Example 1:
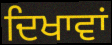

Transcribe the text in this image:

ਦਿਖਾਵਾਂ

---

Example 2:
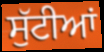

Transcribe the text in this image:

ਸੁੱਟੀਆਂ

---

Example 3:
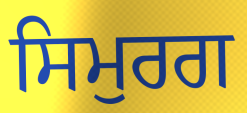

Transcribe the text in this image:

ਸਿਮੁਰਗ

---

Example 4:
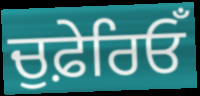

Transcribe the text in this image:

ਚੁਫ਼ੇਰਿਓਁ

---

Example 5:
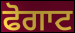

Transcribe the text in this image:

ਫੋਗਾਟ